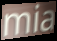
mia